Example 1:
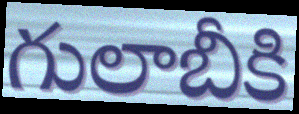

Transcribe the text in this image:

గులాబీకి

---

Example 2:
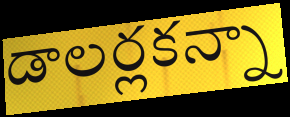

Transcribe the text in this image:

డాలర్లకన్నా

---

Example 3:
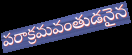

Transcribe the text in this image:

పరాక్రమవంతుడనైన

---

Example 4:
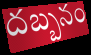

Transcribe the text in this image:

దబ్బనం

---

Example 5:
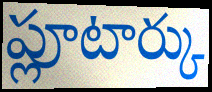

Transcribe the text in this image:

ప్లూటార్కు